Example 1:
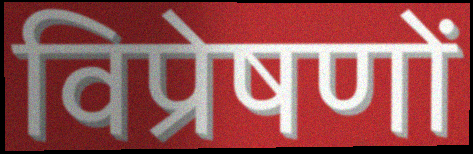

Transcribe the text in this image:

विप्रेषणों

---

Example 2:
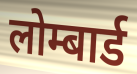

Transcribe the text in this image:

लोम्बार्ड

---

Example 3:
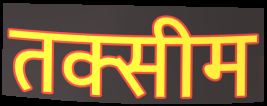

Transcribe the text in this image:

तक्सीम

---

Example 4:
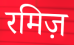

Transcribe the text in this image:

रमिज़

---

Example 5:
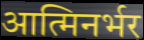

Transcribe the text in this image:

आत्मिनर्भर